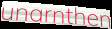
unarnthen